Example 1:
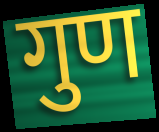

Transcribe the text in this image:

गुण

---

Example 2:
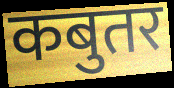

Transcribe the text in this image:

कबुतर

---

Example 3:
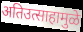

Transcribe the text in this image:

अतिउत्साहामुळे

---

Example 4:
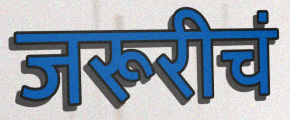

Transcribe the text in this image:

जरूरीचं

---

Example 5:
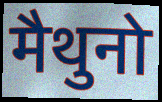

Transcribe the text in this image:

मैथुनो